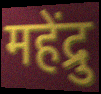
महेंद्रु